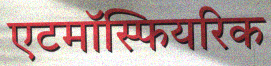
एटमॉस्फियरिक